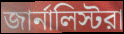
জার্নালিস্টরা